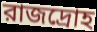
রাজদ্রোহ